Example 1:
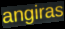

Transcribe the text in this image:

angiras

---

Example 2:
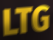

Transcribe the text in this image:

LTG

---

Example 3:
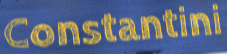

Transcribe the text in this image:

Constantini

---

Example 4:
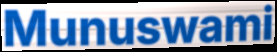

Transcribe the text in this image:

Munuswami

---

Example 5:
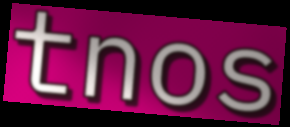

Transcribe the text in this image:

tnos